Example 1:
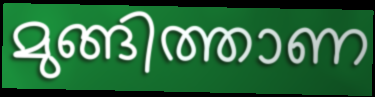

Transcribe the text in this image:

മുങ്ങിത്താണ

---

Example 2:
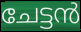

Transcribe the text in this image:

ചേട്ടൻ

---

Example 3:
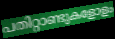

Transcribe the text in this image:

പതിറ്റാണ്ടുകളോളം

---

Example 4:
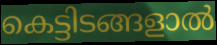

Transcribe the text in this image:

കെട്ടിടങ്ങളാൽ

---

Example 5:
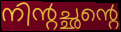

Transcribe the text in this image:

നിന്റച്ഛന്റെ